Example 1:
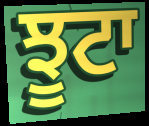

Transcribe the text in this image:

ਝੂਟਾ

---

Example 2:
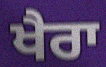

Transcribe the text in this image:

ਖੈਰਾ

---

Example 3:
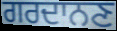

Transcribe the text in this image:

ਗਰਦਾਨਣ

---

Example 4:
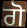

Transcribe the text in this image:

ਗੋ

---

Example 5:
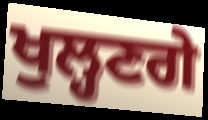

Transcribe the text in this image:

ਖੁਲ੍ਹਣਗੇ